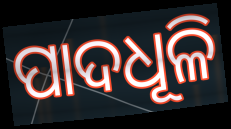
ପାଦଧୂଳି